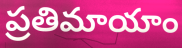
ప్రతిమాయాం